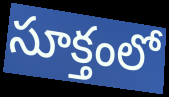
సూక్తంలో